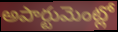
అపార్టుమెంట్లో